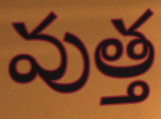
వుత్త